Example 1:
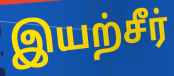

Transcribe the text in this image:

இயற்சீர்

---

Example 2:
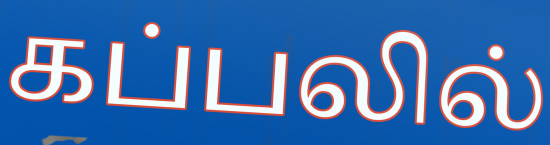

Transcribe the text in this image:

கப்பலில்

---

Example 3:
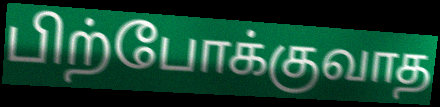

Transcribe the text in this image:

பிற்போக்குவாத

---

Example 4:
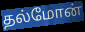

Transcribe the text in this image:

தல்மோன்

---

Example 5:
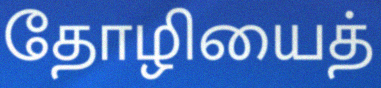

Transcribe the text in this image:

தோழியைத்